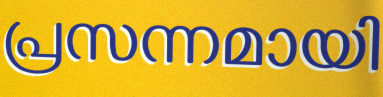
പ്രസന്നമായി